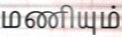
மணியும்